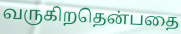
வருகிறதென்பதை